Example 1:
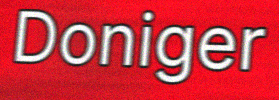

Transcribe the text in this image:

Doniger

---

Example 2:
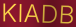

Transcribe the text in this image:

KIADB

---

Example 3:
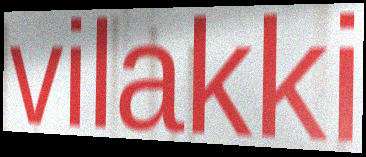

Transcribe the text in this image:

vilakki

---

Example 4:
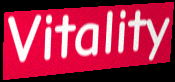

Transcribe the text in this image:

Vitality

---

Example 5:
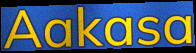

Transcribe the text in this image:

Aakasa